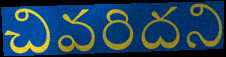
చివరిదని